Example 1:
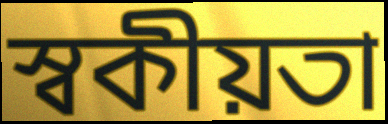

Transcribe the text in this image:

স্বকীয়তা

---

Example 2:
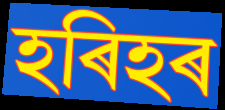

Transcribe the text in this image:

হৰিহৰ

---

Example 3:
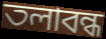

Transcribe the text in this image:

তলাবন্ধ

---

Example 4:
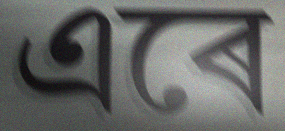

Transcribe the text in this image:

এৰে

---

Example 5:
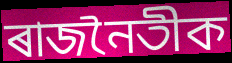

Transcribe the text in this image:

ৰাজনৈতীক